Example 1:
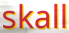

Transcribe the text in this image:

skall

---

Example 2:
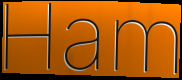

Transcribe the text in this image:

Ham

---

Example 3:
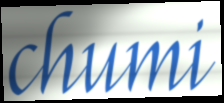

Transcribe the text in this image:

chumi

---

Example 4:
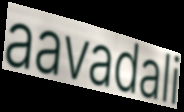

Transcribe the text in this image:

aavadali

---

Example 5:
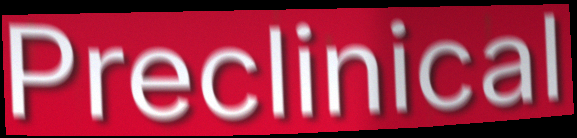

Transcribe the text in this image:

Preclinical